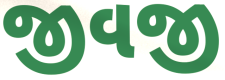
જીવજી